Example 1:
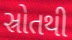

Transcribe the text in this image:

સ્રોતથી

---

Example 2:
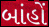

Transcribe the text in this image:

બાંહોં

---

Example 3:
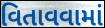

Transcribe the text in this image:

વિતાવવામાં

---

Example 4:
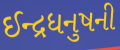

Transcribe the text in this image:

ઈન્દ્રધનુષની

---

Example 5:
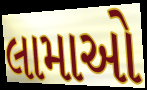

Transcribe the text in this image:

લામાઓ